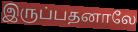
இருப்பதனாலே